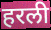
हरली